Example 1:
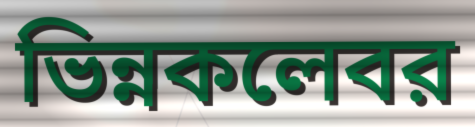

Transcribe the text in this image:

ভিন্নকলেবর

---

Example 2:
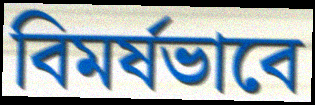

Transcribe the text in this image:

বিমর্ষভাবে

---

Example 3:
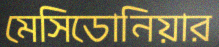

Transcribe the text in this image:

মেসিডোনিয়ার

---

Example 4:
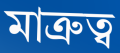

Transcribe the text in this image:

মাত্রুত্ব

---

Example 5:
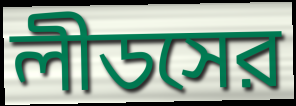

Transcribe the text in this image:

লীডসের